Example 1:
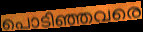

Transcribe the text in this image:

പൊടിഞ്ഞവരെ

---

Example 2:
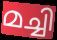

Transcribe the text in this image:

മച്ചി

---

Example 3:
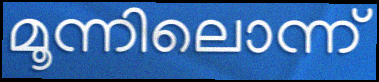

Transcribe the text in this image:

മൂന്നിലൊന്ന്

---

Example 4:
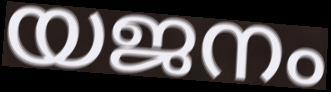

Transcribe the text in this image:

യജനം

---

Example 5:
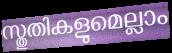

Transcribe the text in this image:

സ്തുതികളുമെല്ലാം